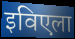
इविएला